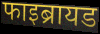
फाइब्रायड